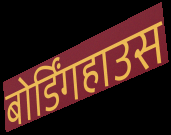
बोर्डिंगहाउस